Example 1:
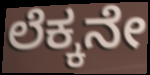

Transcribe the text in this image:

ಲೆಕ್ಕನೇ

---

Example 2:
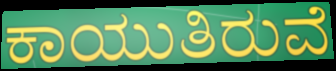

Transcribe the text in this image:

ಕಾಯುತಿರುವೆ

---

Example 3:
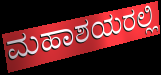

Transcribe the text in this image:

ಮಹಾಶಯರಲ್ಲಿ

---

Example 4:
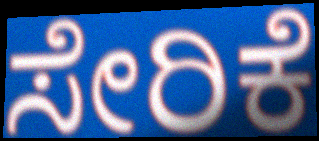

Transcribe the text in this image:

ಸೇರಿಕೆ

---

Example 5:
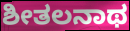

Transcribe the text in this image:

ಶೀತಲನಾಥ